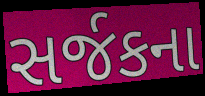
સર્જકના